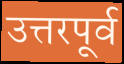
उत्तरपूर्व